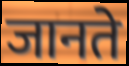
जानते